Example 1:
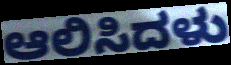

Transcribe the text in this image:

ಆಲಿಸಿದಳು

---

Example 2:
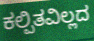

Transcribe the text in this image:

ಕಲ್ಪಿತವಿಲ್ಲದ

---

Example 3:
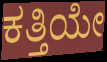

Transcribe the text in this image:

ಕತ್ತಿಯೇ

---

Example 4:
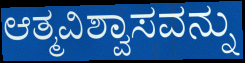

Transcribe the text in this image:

ಆತ್ಮವಿಶ್ವಾಸವನ್ನು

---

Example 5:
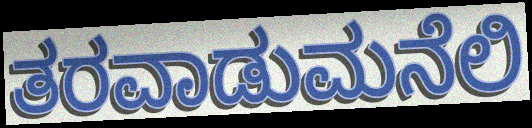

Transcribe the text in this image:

ತರವಾಡುಮನೆಲಿ